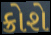
ક્રોશે